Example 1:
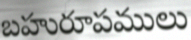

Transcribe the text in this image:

బహురూపములు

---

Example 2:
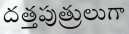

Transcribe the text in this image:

దత్తపుత్రులుగా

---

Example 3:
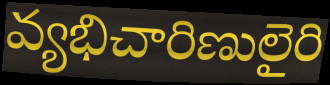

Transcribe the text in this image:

వ్యభిచారిణులైరి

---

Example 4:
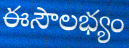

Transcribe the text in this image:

ఈసౌలభ్యం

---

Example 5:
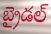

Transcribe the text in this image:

బ్రైడల్